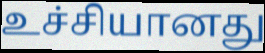
உச்சியானது